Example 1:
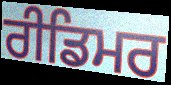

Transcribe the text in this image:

ਰੀਡਿਮਰ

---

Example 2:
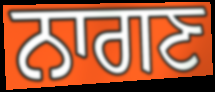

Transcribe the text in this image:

ਨਾਗਣ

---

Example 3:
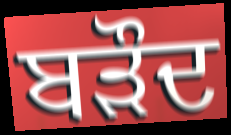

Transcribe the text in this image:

ਬੜੌਦ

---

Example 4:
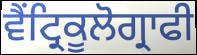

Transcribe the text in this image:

ਵੈਂਟ੍ਰਿਕੂਲੋਗ੍ਰਾਫੀ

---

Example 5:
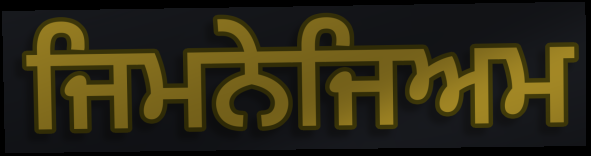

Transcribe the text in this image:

ਜਿਮਨੇਜਿਅਮ